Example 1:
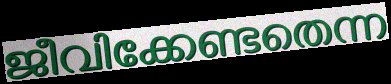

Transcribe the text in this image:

ജീവിക്കേണ്ടതെന്ന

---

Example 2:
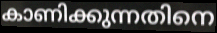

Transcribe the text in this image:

കാണിക്കുന്നതിനെ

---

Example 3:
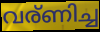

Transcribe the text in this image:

വര്ണിച്ച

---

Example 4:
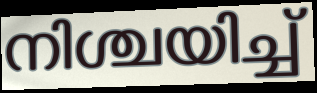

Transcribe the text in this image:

നിശ്ചയിച്ച്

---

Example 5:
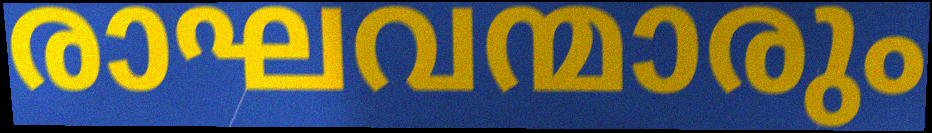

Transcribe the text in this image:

രാഘവന്മാരും